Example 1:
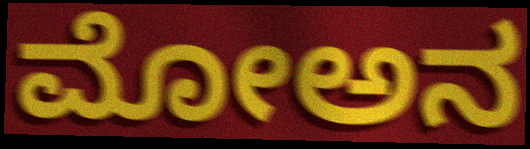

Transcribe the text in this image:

ಮೋಅನ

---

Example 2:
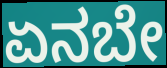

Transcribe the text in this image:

ಏನಬೇ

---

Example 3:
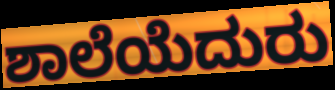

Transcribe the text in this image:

ಶಾಲೆಯೆದುರು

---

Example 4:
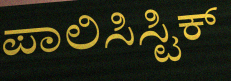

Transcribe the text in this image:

ಪಾಲಿಸಿಸ್ಟಿಕ್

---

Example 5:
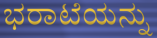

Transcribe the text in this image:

ಭರಾಟೆಯನ್ನು